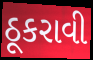
ઠૂકરાવી